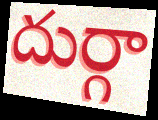
దుర్గా